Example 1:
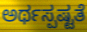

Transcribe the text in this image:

ಅರ್ಥಸ್ಪಷ್ಟತೆ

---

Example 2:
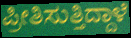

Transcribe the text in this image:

ಪ್ರೀತಿಸುತ್ತಿದ್ದಾಳೆ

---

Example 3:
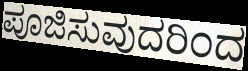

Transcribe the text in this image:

ಪೂಜಿಸುವುದರಿಂದ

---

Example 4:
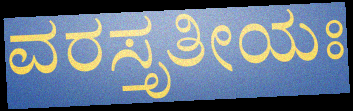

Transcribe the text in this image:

ವರಸ್ತೃತೀಯಃ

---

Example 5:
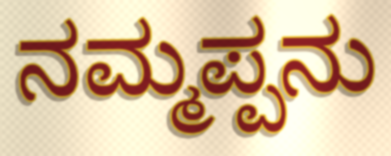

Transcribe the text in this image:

ನಮ್ಮಪ್ಪನು